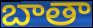
బాతా